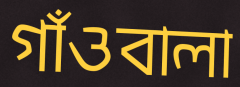
গাঁওবালা